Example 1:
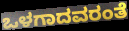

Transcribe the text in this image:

ಒಳಗಾದವರಂತೆ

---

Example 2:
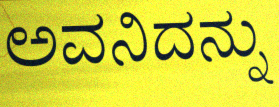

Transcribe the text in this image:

ಅವನಿದನ್ನು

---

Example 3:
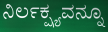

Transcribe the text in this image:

ನಿರ್ಲಕ್ಷ್ಯವನ್ನೂ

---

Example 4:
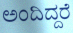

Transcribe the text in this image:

ಅಂದಿದ್ದರೆ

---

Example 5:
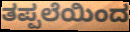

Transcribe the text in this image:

ತಪ್ಪಲೆಯಿಂದ